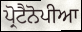
ਪ੍ਰੋਟੈਨੋਪੀਆ